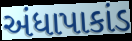
અંધાપાકાંડ